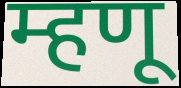
म्हणू